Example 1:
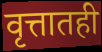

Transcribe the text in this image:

वृत्तातही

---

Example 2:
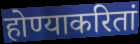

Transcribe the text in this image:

होण्याकरितां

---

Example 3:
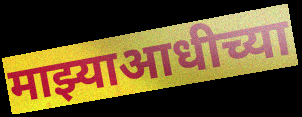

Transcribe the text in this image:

माझ्याआधीच्या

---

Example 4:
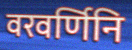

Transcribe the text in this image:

वरवर्णिनि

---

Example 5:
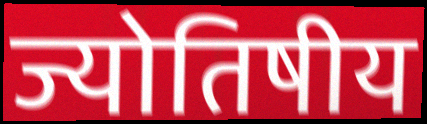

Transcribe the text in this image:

ज्योतिषीय